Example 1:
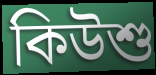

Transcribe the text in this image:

কিউশু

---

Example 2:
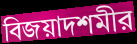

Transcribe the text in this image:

বিজয়াদশমীর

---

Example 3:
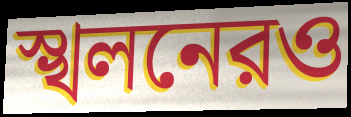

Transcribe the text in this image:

স্খলনেরও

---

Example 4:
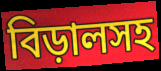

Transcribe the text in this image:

বিড়ালসহ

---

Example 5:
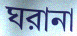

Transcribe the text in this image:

ঘরানা